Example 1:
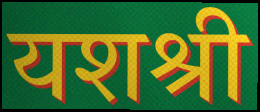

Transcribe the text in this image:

यशश्री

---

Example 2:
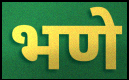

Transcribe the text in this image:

भणे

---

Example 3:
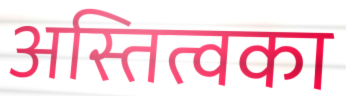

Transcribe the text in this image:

अस्तित्वका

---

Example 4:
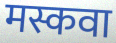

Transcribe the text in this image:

मस्कवा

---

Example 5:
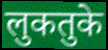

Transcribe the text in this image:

लुकतुके